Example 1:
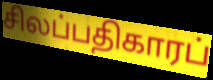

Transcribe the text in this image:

சிலப்பதிகாரப்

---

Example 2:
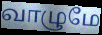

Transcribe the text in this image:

வாழுமே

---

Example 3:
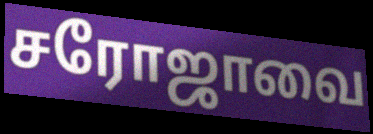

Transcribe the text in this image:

சரோஜாவை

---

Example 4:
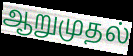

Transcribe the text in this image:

ஆறுமுதல்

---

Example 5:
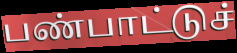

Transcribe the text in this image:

பண்பாட்டுச்